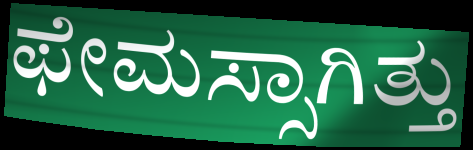
ಫೇಮಸ್ಸಾಗಿತ್ತು